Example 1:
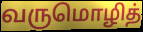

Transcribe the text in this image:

வருமொழித்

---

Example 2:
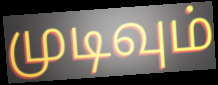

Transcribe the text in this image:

முடிவும்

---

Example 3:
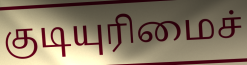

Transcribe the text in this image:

குடியுரிமைச்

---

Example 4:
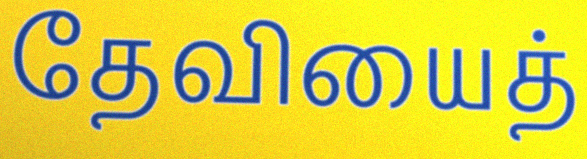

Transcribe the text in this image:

தேவியைத்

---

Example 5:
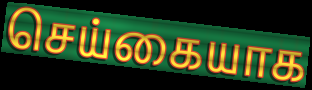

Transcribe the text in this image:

செய்கையாக